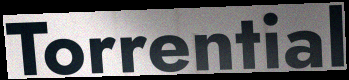
Torrential